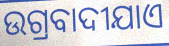
ଉଗ୍ରବାଦୀଯାଏ